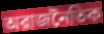
অরাজনৈতিক